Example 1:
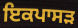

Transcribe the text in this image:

ਇਕਪਾਸੜ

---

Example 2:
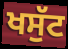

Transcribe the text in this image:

ਖਸੁੱਟ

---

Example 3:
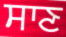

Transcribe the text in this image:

ਸਾਣ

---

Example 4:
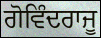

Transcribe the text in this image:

ਗੋਵਿੰਦਰਾਜੂ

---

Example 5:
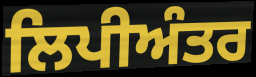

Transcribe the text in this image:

ਲਿਪੀਅੰਤਰ